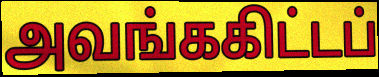
அவங்ககிட்டப்